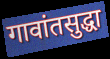
गावांतसुद्धा